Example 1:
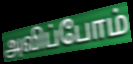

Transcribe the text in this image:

அவிப்போம்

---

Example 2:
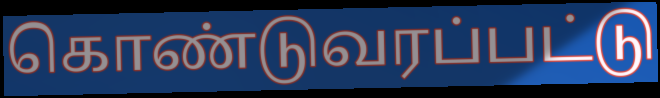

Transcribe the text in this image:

கொண்டுவரப்பட்டு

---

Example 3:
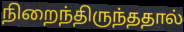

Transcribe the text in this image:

நிறைந்திருந்ததால்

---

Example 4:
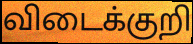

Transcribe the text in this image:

விடைக்குறி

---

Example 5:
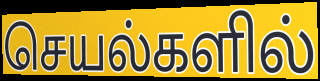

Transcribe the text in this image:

செயல்களில்